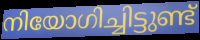
നിയോഗിച്ചിട്ടുണ്ട്